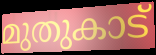
മുതുകാട്